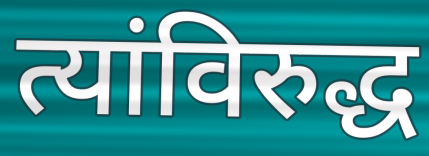
त्यांविरुद्ध